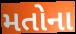
મતોના